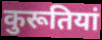
कुरूतियां